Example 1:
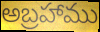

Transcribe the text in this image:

అబ్రహాము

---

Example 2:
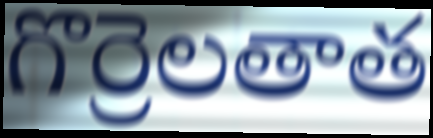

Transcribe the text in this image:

గొర్రెలతాత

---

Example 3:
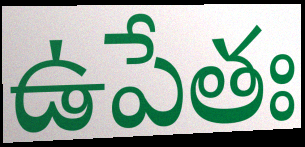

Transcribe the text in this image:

ఉపేతః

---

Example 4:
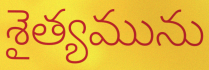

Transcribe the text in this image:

శైత్యమును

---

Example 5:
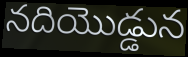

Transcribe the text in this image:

నదియొడ్డున